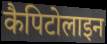
कैपिटोलाइन